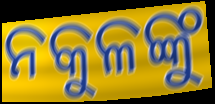
ନକୁଳଙ୍କୁ